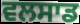
ਵਲਸਾਡ